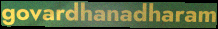
govardhanadharam